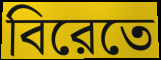
বিরেতে